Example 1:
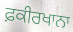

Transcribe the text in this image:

ਫ਼ਕੀਰਖਾਨਾ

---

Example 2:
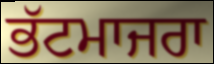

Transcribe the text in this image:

ਭੱਟਮਾਜਰਾ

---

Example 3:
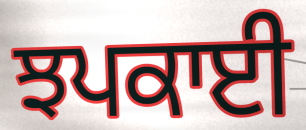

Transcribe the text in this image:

ਝਪਕਾਈ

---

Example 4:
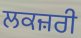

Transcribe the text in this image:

ਲਕਜ਼ਰੀ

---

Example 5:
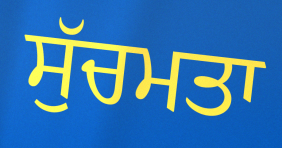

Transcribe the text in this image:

ਸੁੱਚਮਤਾ